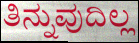
ತಿನ್ನುವುದಿಲ್ಲ